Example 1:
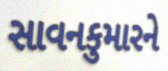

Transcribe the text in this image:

સાવનકુમારને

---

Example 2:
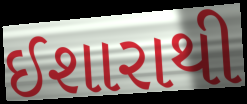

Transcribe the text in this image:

ઈશારાથી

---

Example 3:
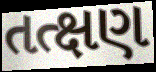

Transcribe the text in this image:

તત્ક્ષણ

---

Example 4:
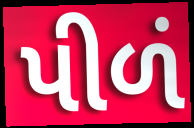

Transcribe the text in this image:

પીળં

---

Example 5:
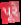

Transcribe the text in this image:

પૂરે